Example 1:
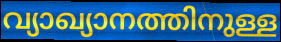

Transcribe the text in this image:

വ്യാഖ്യാനത്തിനുള്ള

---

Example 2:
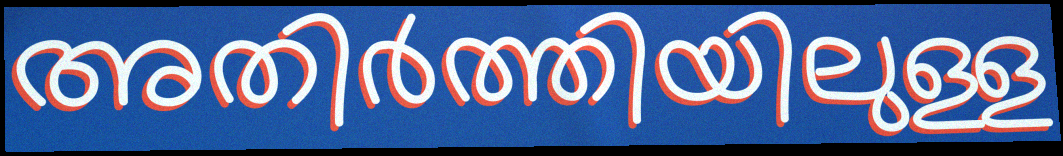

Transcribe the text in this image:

അതിർത്തിയിലുള്ള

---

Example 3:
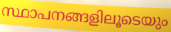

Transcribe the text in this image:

സ്ഥാപനങ്ങളിലൂടെയും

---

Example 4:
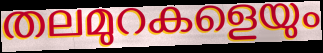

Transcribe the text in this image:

തലമുറകളെയും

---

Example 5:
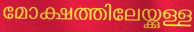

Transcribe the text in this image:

മോക്ഷത്തിലേയ്ക്കുള്ള